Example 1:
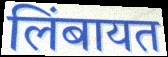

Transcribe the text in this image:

लिंबायत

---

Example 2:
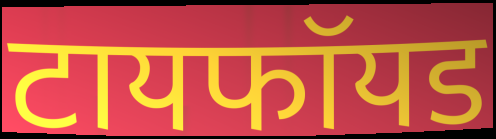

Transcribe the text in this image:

टायफॉयड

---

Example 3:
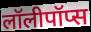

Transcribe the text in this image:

लॉलीपॉप्स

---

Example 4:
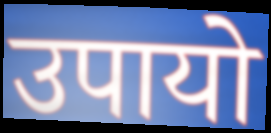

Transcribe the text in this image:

उपायो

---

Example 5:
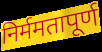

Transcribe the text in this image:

निर्ममतापूर्ण